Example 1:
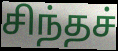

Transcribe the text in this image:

சிந்தச்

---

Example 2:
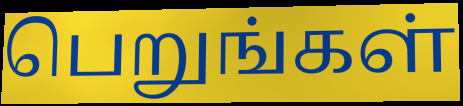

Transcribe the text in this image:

பெறுங்கள்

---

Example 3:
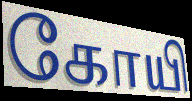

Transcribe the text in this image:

கோயி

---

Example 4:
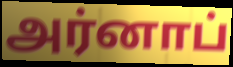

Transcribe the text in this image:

அர்னாப்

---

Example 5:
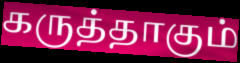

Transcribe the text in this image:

கருத்தாகும்